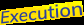
Execution